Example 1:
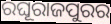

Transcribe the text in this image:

ରଘୂରାଜପୁରର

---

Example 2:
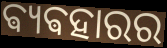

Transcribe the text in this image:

ଵ୍ୟଵହାରର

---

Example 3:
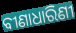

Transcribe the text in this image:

ବୀଣାଧାରିଣୀ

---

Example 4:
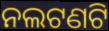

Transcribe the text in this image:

ନଲଟଣଟି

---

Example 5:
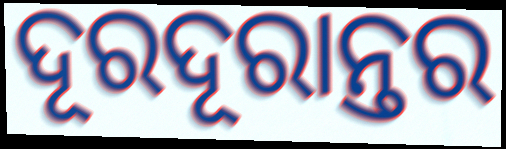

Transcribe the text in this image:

ଦୂରଦୂରାନ୍ତର